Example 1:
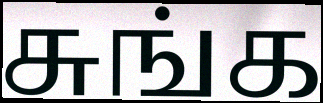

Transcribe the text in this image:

சுங்க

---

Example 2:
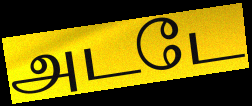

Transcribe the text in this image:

அடடே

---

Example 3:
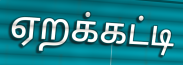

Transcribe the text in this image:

ஏறக்கட்டி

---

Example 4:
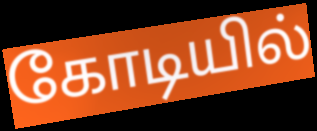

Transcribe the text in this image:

கோடியில்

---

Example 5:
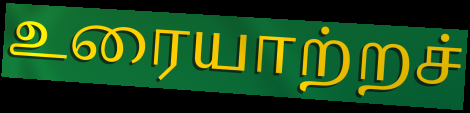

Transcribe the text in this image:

உரையாற்றச்